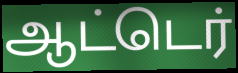
ஆட்டெர்